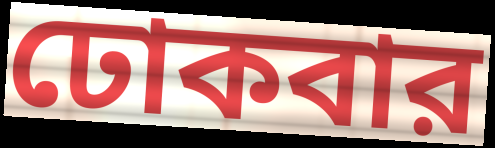
ঢোকবার